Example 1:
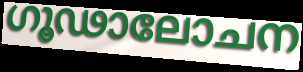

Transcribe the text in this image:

ഗൂഢാലോചന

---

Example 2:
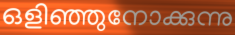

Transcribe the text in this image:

ഒളിഞ്ഞുനോക്കുന്നു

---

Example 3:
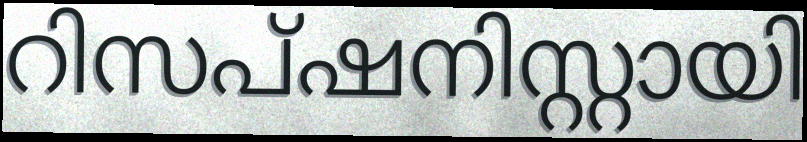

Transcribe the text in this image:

റിസപ്ഷനിസ്റ്റായി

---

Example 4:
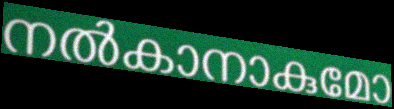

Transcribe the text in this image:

നൽകാനാകുമോ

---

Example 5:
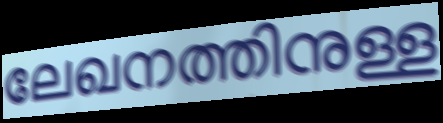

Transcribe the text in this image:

ലേഖനത്തിനുള്ള